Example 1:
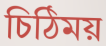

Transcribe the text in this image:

চিঠিময়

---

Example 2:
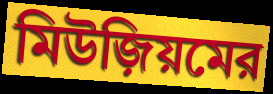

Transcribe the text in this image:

মিউজ়িয়মের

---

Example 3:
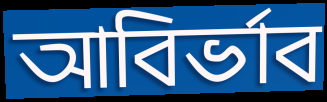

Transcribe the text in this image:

আবির্ভাব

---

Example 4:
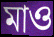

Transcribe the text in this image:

মাও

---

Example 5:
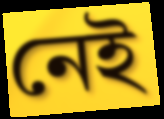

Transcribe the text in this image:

নেই